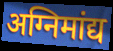
अग्निमांद्य